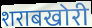
शराबखोरी